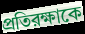
প্রতিরক্ষাকে